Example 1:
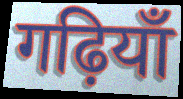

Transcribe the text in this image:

गढ़ियाँ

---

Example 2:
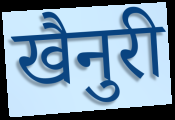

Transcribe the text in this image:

खैनुरी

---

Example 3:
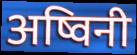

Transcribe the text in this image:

अष्विनी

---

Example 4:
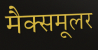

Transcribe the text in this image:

मैक्समूलर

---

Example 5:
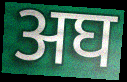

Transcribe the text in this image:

अघ